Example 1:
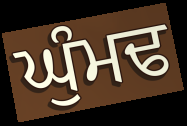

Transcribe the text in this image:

ਘੁੰਮਢ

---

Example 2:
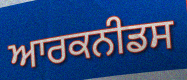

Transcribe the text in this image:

ਆਰਕਨੀਡਸ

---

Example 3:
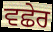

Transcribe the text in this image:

ਵਛੇਰ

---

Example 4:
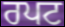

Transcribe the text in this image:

ਰਪਟ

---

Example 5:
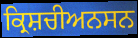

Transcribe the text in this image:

ਕ੍ਰਿਸ਼ਚੀਅਨਸਨ